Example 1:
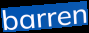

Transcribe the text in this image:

barren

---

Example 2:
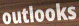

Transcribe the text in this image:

outlooks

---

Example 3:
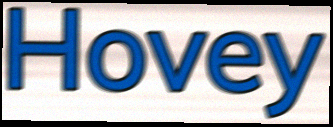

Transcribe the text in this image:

Hovey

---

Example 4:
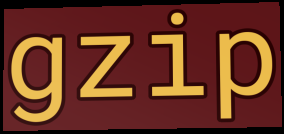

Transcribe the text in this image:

gzip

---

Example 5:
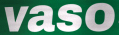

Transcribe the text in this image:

vaso